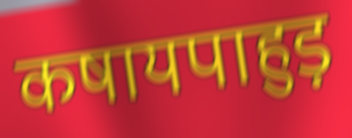
कषायपाहुड़